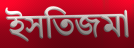
ইসতিজমা